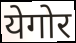
येगोर